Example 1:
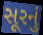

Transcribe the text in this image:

સૂરનું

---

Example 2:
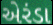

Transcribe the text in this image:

એરંડા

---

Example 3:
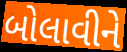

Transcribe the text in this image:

બોલાવીને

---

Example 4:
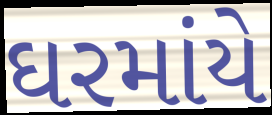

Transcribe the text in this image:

ઘરમાંયે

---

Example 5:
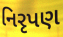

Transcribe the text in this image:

નિરૃપણ